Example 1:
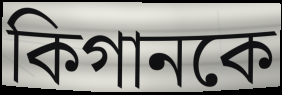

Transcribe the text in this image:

কিগানকে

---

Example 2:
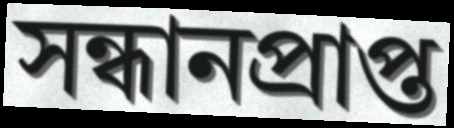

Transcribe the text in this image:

সন্ধানপ্রাপ্ত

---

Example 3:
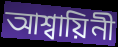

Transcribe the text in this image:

আশ্বায়িনী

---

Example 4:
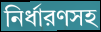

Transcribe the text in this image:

নির্ধারণসহ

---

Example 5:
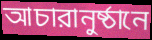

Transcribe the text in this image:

আচারানুষ্ঠানে